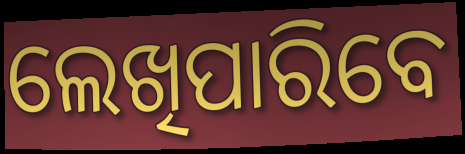
ଲେଖିପାରିବେ